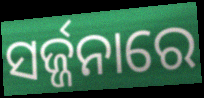
ସର୍ଜ୍ଜନାରେ